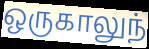
ஒருகாலுந்